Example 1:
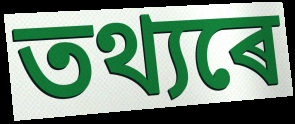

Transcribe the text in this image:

তথ্যৰে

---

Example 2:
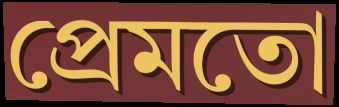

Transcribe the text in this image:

প্ৰেমতো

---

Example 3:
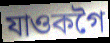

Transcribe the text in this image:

যাওকগৈ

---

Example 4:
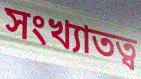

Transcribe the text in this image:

সংখ্যাতত্ব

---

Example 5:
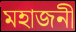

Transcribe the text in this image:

মহাজনী